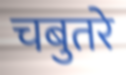
चबुतरे